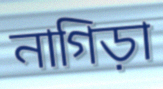
নাগিড়া